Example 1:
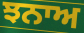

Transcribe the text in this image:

ਝਨਾਅ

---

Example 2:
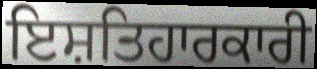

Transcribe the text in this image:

ਇਸ਼ਤਿਹਾਰਕਾਰੀ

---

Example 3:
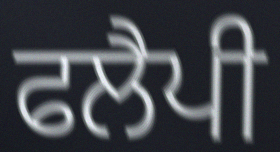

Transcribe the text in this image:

ਫਲੈਪੀ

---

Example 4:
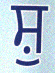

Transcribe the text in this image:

ਸ਼ੁ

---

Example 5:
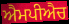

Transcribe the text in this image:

ਐਮਪੀਐਚ